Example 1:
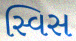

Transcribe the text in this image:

સ્વિસ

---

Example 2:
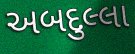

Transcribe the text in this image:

અબદુલ્લા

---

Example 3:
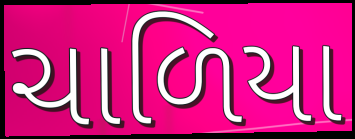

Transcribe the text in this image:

ચાળિયા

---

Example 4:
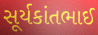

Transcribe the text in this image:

સૂર્યકાંતભાઈ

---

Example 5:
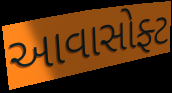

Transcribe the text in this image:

આવાસોફ્ટ